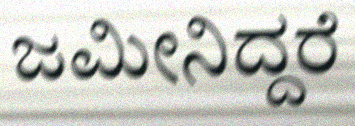
ಜಮೀನಿದ್ದರೆ